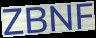
ZBNF